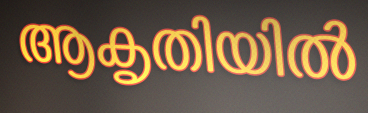
ആകൃതിയിൽ